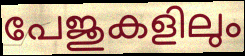
പേജുകളിലും